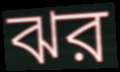
ঝর